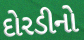
દોરડીનો